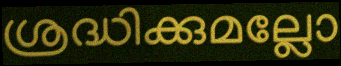
ശ്രദ്ധിക്കുമല്ലോ